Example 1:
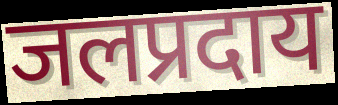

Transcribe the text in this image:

जलप्रदाय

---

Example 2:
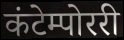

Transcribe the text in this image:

कंटेम्पोररी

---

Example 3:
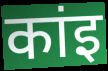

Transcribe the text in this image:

कांइ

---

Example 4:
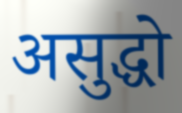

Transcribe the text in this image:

असुद्धो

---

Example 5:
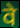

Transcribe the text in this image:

वे